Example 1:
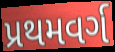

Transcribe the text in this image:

પ્રથમવર્ગ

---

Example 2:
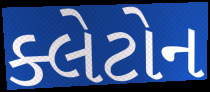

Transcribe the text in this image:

ક્લેટોન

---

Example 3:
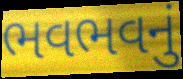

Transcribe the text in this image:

ભવભવનું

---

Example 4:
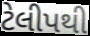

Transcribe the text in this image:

ટેલીપથી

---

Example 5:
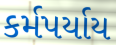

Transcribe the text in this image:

કર્મપર્યાય